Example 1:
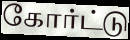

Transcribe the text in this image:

கோர்ட்டு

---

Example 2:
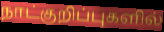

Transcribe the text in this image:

நாட்குறிப்புகளில்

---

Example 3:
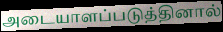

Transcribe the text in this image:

அடையாளப்படுத்தினால்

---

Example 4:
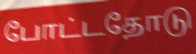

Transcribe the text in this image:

போட்டதோடு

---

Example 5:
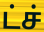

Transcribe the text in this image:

ட்ச்